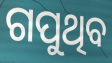
ଗପୁଥିବ